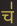
च॑